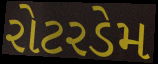
રોટરડેમ